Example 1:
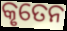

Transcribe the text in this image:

କୃତେନ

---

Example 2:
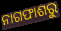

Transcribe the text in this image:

ନାଗଫାଶରୁ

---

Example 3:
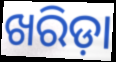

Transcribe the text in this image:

ଖରିଡ଼ା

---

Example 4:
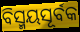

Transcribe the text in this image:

ବିସ୍ମୟସୂର୍ବକ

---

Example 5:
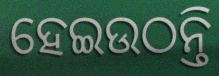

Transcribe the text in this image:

ହେଇଉଠନ୍ତି